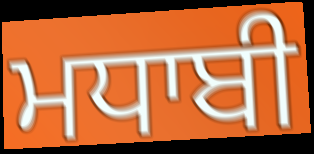
ਮਧਾਬੀ